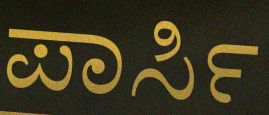
ಪಾರ್ಸಿ